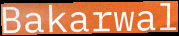
Bakarwal